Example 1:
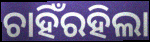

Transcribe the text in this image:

ଚାହିଁରହିଲା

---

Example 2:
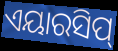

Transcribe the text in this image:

ଏୟାରସିପ୍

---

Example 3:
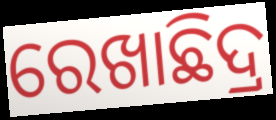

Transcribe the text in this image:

ରେଖାଛିଦ୍ର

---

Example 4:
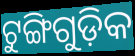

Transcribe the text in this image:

ଟୁଙ୍ଗିଗୁଡ଼ିକ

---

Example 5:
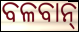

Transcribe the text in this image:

ବଳବାନ୍